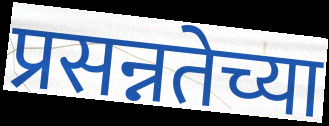
प्रसन्नतेच्या